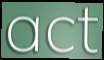
act